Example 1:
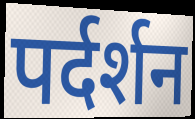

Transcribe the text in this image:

पर्दर्शन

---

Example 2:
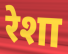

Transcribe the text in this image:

रेशा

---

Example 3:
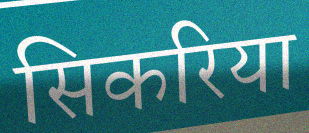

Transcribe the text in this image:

सिकरिया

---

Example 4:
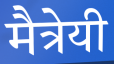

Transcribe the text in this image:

मैत्रेयी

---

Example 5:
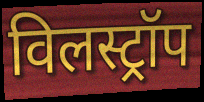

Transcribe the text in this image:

विलस्ट्रॉप